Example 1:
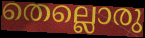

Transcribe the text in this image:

തെല്ലൊരു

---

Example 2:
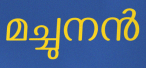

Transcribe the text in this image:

മച്ചുനൻ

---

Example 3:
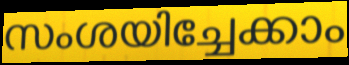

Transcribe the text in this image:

സംശയിച്ചേക്കാം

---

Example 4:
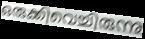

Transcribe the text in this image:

ഒരുക്കിവെച്ചിരുന്നു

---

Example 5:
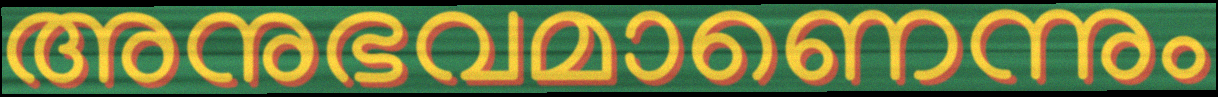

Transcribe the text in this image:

അനുഭവമാണെന്നും